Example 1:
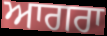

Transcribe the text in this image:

ਆਗਰਾ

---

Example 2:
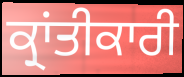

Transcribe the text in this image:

ਕ੍ਰਾਂਤੀਕਾਰੀ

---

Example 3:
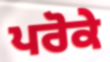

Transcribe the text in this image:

ਪਰੋਕੇ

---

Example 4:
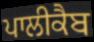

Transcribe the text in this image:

ਪਾਲੀਕੈਬ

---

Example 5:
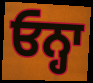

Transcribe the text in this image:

ਓਨ੍ਹਾ